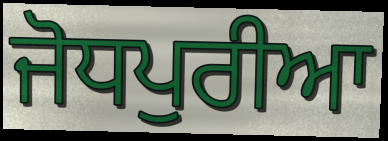
ਜੋਧਪੁਰੀਆ